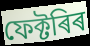
ফেক্টৰিৰ